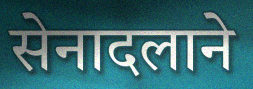
सेनादलाने